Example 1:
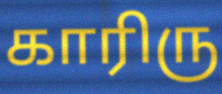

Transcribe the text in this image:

காரிரு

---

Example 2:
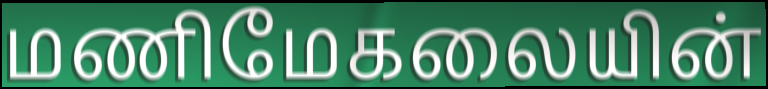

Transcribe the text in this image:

மணிமேகலையின்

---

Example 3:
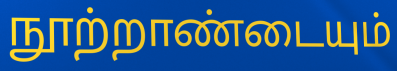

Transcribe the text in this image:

நூற்றாண்டையும்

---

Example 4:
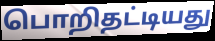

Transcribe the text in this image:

பொறிதட்டியது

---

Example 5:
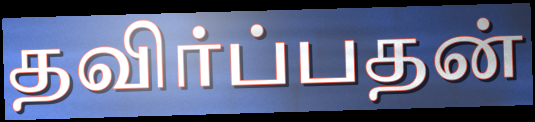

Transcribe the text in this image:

தவிர்ப்பதன்